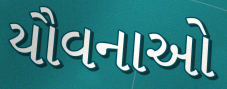
યૌવનાઓ